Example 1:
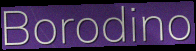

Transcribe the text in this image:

Borodino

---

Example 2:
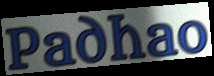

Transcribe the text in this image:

Padhao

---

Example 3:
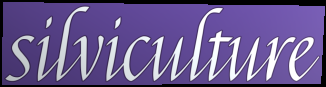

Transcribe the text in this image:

silviculture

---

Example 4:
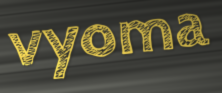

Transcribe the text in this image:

vyoma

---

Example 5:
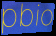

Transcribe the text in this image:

pbio